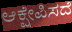
ಆಕ್ಷೇಪಿಸದೆ